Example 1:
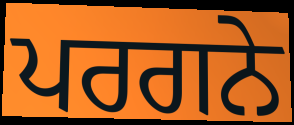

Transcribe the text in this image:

ਪਰਗਨੇ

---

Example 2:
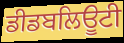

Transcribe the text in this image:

ਡੀਡਬਲਿਊਟੀ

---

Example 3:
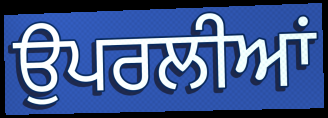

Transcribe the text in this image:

ਉਪਰਲੀਆਂ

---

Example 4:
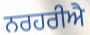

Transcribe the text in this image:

ਨਰਹਰੀਐ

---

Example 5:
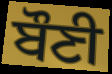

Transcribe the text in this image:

ਬੌਣੀ